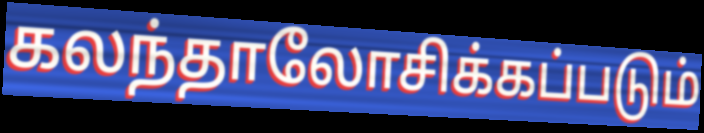
கலந்தாலோசிக்கப்படும்